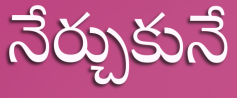
నేర్చుకునే